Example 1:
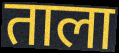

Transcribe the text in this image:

ताला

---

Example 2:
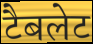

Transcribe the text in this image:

टैबलेट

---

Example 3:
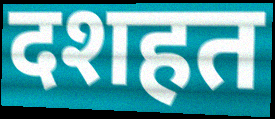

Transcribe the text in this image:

दशहत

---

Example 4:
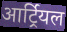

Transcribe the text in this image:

आर्ट्रियल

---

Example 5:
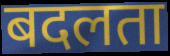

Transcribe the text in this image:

बदलता